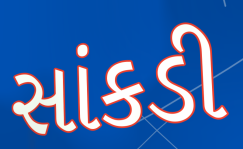
સાંકડી